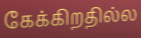
கேக்கிறதில்ல